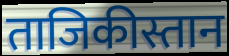
ताजिकीस्तान